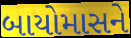
બાયોમાસને